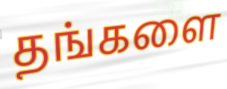
தங்களை